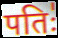
पतिः॑